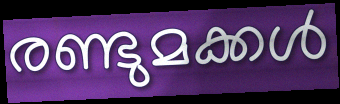
രണ്ടുമക്കൾ